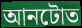
আনটোত